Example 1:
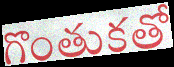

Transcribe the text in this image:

గొంతుకతో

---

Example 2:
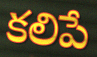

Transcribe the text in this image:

కలిపే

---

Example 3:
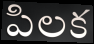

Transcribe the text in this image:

పిలక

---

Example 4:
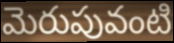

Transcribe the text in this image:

మెరుపువంటి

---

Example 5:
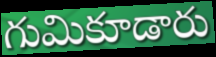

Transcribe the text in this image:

గుమికూడారు